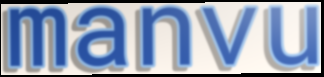
manvu